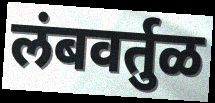
लंबवर्तुळ